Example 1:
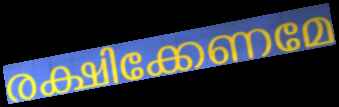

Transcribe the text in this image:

രക്ഷിക്കേണമേ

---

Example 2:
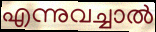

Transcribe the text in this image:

എന്നുവച്ചാൽ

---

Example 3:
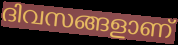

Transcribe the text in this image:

ദിവസങ്ങളാണ്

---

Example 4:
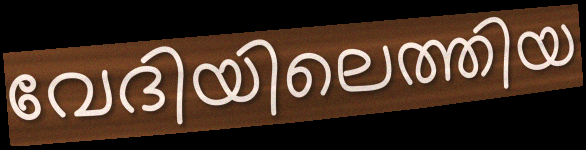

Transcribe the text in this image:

വേദിയിലെത്തിയ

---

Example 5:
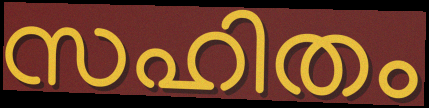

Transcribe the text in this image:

സഹിതം